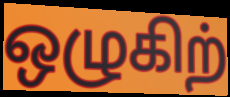
ஒழுகிற்